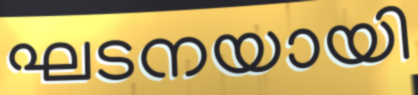
ഘടനയായി